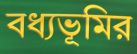
বধ্যভূমির